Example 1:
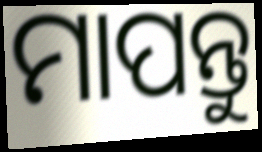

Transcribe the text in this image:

ମାପନ୍ତୁ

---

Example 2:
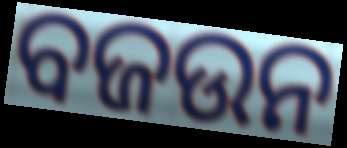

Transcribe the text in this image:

ବଜଉନ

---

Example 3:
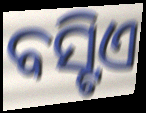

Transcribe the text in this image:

ବସ୍ଟିଏ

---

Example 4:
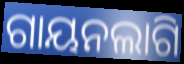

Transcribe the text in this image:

ଗାୟନଲାଗି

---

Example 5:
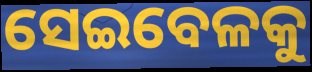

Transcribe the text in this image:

ସେଇବେଳକୁ